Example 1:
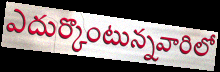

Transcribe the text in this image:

ఎదుర్కొంటున్నవారిలో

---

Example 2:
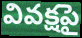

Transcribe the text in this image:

వివక్షపై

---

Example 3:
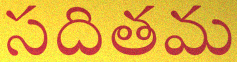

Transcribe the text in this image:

సదితమ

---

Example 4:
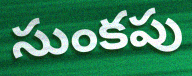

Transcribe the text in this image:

సుంకపు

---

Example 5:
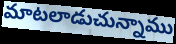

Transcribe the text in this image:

మాటలాడుచున్నాము